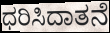
ಧರಿಸಿದಾತನೆ